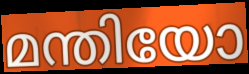
മന്തിയോ